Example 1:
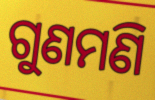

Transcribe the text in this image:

ଗୁଣମଣି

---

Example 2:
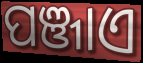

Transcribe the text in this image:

ପଞ୍ଜାଏ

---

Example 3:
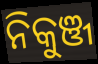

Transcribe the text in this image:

ନିକୁଞ୍ଜ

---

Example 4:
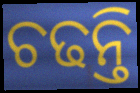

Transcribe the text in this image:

ଚଢନ୍ତି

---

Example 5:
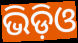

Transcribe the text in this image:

ଭିଡ଼ିଓ